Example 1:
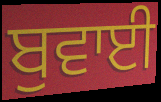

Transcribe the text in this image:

ਬੁਵਾਈ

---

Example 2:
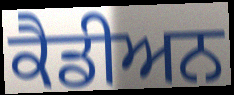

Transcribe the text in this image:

ਕੈਡੀਅਨ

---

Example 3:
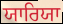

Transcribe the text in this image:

ਯਾਰਿਯਾ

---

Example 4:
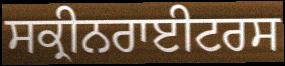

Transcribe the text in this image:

ਸਕ੍ਰੀਨਰਾਈਟਰਸ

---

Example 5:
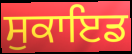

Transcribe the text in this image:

ਸੁਕਾਇਡ